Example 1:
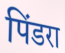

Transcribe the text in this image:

पिंडरा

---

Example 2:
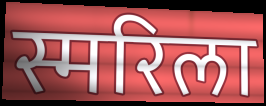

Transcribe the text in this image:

स्मरिला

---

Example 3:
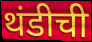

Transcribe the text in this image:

थंडीची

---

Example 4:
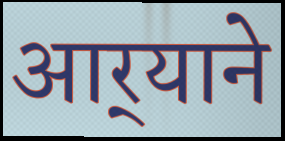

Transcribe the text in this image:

आर्याने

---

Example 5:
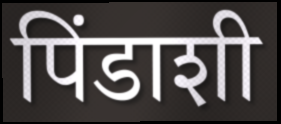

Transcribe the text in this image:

पिंडाशी